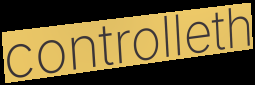
controlleth